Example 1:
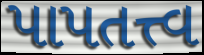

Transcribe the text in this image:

પાપતત્ત્વ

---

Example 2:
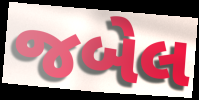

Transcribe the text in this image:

જબેલ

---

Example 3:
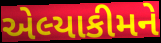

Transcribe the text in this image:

એલ્યાકીમને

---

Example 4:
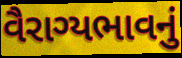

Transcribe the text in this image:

વૈરાગ્યભાવનું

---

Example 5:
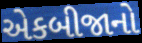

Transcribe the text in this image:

એકબીજાનો